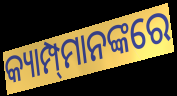
କ୍ୟାମ୍ପ୍‍ମାନଙ୍କରେ